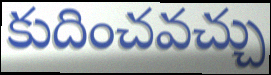
కుదించవచ్చు